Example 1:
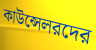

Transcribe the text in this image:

কাউন্সেলরদের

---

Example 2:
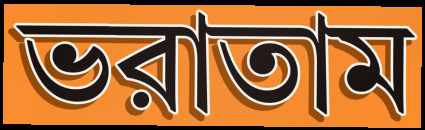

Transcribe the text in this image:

ভরাতাম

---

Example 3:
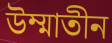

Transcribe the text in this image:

উম্মাতীন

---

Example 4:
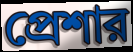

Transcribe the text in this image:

প্রেশার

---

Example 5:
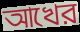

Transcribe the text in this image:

আখের